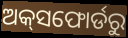
ଅକ୍‌ସଫୋର୍ଡରୁ